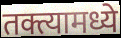
तक्त्यामध्ये